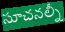
సూచనల్నీ